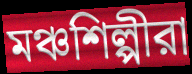
মঞ্চশিল্পীরা